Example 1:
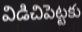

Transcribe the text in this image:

విడిచిపెట్టకు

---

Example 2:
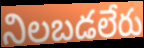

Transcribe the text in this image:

నిలబడలేరు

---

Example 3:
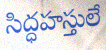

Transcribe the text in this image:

సిద్ధహస్తులే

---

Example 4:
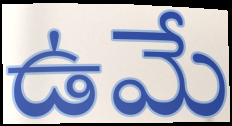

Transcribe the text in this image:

ఉమే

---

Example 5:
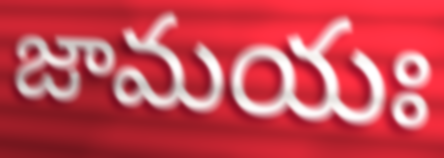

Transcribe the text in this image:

జామయః